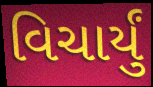
વિચાર્યું